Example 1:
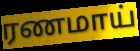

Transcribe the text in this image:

ரணமாய்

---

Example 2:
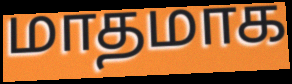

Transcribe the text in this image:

மாதமாக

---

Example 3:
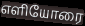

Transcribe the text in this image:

எளியோரை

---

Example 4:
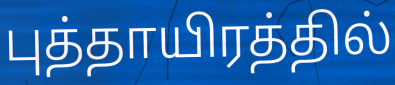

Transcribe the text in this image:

புத்தாயிரத்தில்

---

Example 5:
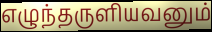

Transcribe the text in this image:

எழுந்தருளியவனும்